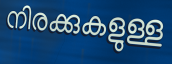
നിരക്കുകളുള്ള